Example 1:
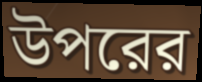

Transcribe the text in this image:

উপরের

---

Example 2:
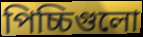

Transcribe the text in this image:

পিচ্চিগুলো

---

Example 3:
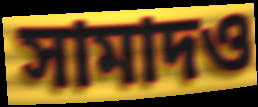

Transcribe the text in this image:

সামাদও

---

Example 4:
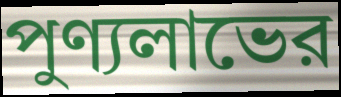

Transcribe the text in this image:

পুণ্যলাভের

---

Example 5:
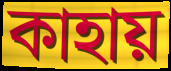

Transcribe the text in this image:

কাহায়